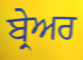
ਬ੍ਰੇਅਰ